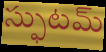
స్ఫుటమ్